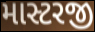
માસ્ટરજી